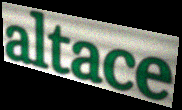
altace